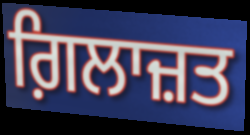
ਗ਼ਿਲਾਜ਼ਤ